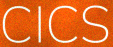
CICS